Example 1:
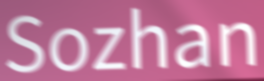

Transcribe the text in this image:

Sozhan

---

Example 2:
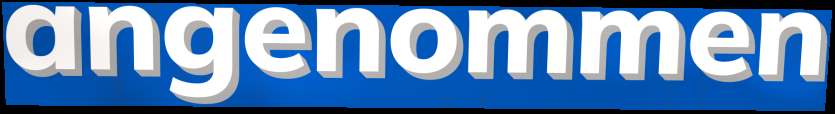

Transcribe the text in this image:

angenommen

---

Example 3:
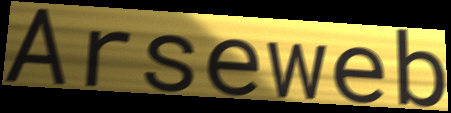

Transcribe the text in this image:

Arseweb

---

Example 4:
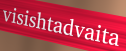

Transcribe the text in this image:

visishtadvaita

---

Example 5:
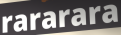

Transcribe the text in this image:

rararara